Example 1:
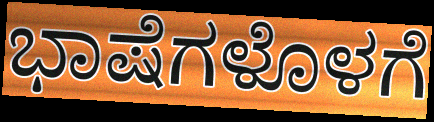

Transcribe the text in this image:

ಭಾಷೆಗಳೊಳಗೆ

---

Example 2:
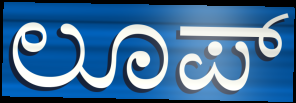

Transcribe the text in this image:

ಲೂಪ್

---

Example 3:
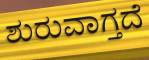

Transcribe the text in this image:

ಶುರುವಾಗ್ತದೆ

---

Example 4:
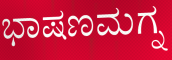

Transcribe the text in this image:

ಭಾಷಣಮಗ್ನ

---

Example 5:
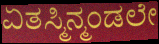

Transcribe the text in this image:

ಏತಸ್ಮಿನ್ಮಂಡಲೇ